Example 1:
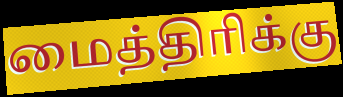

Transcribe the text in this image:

மைத்திரிக்கு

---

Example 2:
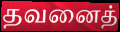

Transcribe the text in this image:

தவனைத்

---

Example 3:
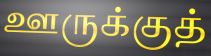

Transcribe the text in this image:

ஊருக்குத்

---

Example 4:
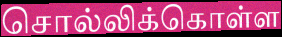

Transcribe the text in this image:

சொல்லிக்கொள்ள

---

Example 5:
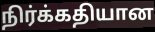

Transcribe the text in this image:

நிர்க்கதியான